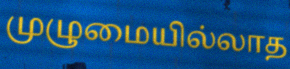
முழுமையில்லாத